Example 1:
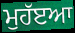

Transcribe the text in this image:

ਮੁਹੱੲਆ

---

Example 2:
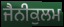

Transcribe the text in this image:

ਜੈਨੀਕੁਲਮ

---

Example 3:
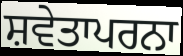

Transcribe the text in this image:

ਸ਼ਵੇਤਾਪਰਨਾ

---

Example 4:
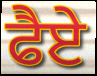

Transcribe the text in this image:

ਫੈਏ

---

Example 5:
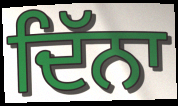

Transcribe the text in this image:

ਦਿੱਨਾ